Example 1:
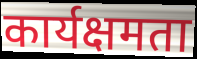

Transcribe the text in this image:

कार्यक्षमता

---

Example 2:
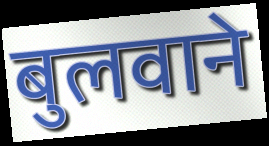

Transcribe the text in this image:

बुलवाने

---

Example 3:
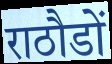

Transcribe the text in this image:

राठौडों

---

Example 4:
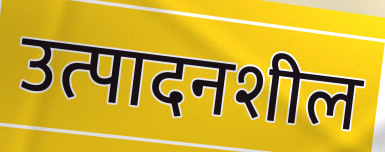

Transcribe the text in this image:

उत्पादनशील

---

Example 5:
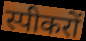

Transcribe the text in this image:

स्पीकरों